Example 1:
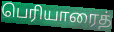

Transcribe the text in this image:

பெரியாரைத்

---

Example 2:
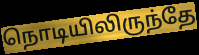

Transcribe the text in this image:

நொடியிலிருந்தே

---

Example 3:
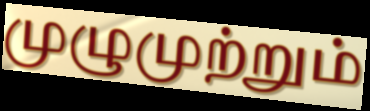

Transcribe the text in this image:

முழுமுற்றும்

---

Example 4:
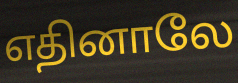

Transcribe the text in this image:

எதினாலே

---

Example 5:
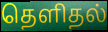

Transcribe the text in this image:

தெளிதல்